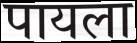
पायला